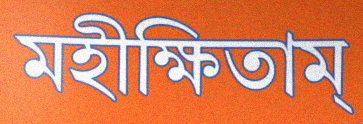
মহীক্ষিতাম্